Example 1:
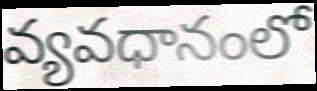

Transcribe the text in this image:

వ్యవధానంలో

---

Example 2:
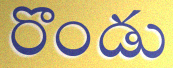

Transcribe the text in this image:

రొండు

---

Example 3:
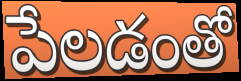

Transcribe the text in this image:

పేలడంతో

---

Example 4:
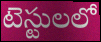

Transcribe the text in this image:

టెస్టులలో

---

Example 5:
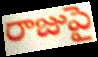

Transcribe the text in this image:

రాజుపై